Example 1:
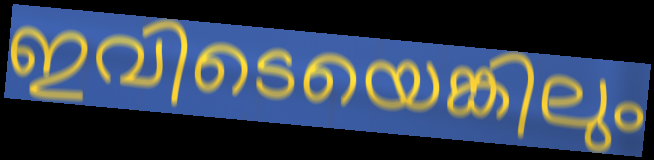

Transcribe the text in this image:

ഇവിടെയെങ്കിലും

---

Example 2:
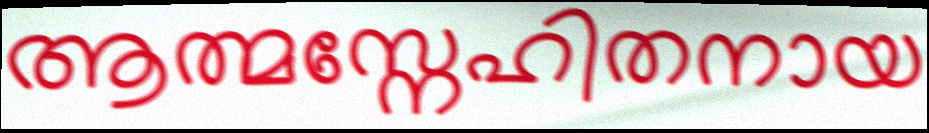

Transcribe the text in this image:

ആത്മസ്നേഹിതനായ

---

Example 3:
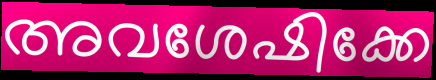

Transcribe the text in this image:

അവശേഷിക്കേ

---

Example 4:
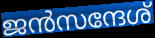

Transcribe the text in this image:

ജൻസന്ദേശ്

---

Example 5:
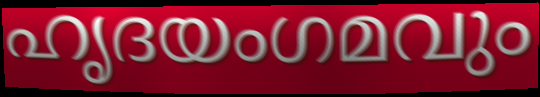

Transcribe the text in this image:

ഹൃദയംഗമവും